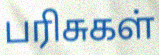
பரிசுகள்